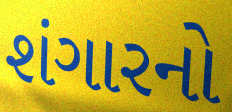
શંગારનો